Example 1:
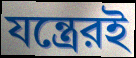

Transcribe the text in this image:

যন্ত্রেরই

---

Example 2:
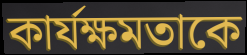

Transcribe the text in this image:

কার্যক্ষমতাকে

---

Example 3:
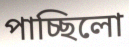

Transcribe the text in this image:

পাচ্ছিলো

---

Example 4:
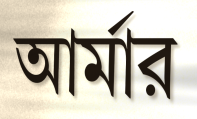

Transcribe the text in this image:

আর্মার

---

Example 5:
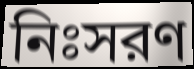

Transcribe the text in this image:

নিঃসরণ